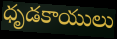
ధృడకాయులు